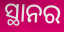
ସ୍ଥାନର